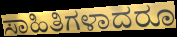
ಸಾಹಿತಿಗಳಾದರೂ